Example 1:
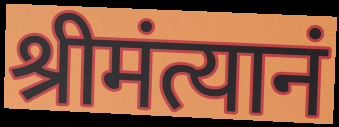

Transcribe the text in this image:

श्रीमंत्यानं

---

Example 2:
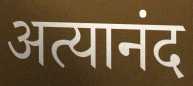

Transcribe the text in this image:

अत्यानंद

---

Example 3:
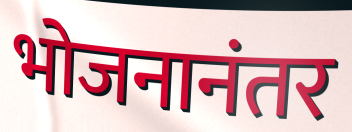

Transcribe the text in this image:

भोजनानंतर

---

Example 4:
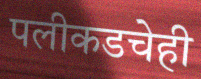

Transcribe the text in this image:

पलीकडचेही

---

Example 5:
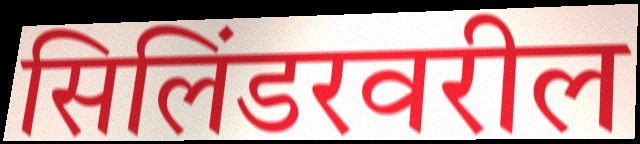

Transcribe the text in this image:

सिलिंडरवरील